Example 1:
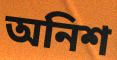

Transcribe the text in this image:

অনিশ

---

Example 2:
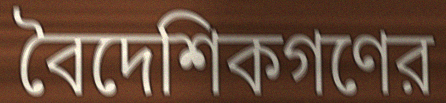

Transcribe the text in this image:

বৈদেশিকগণের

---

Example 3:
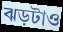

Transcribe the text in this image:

ঝড়টাও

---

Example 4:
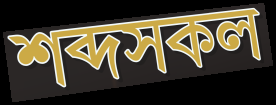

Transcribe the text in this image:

শব্দসকল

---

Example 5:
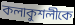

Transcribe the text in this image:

কলাকুশলীকে